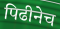
पिढीनेच